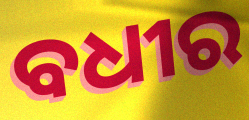
ବଧୀର